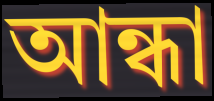
আন্ধা